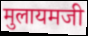
मुलायमजी